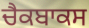
ਚੈਕਬਾਕਸ